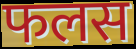
फलस